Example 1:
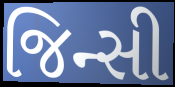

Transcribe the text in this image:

જિન્સી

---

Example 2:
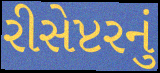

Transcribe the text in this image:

રીસેપ્ટરનું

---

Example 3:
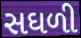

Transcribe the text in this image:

સઘળી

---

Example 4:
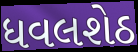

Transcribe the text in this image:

ધવલશેઠ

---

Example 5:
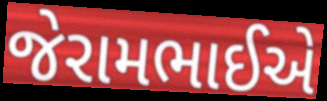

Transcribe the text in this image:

જેરામભાઈએ